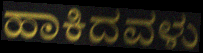
ಹಾಕಿದವಳು